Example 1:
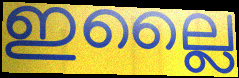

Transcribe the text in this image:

ഇല്ലൈ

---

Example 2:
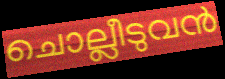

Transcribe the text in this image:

ചൊല്ലീടുവൻ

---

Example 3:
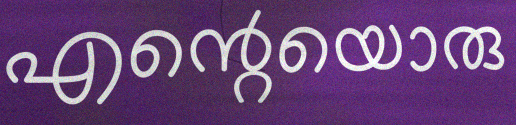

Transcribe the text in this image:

എന്റെയൊരു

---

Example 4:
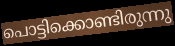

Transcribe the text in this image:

പൊട്ടിക്കൊണ്ടിരുന്നു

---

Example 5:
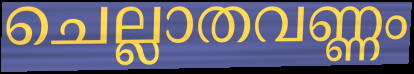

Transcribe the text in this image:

ചെല്ലാതവണ്ണം